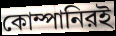
কোম্পানিরই